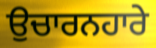
ਉਚਾਰਨਹਾਰੇ